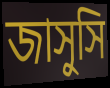
জাসুসি